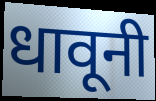
धावूनी